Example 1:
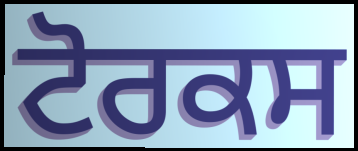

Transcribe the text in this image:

ਟੋਰਕਸ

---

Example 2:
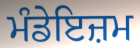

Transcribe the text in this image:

ਮੰਡੇਇਜ਼ਮ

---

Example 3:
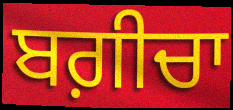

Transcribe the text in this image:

ਬਗ਼ੀਚਾ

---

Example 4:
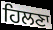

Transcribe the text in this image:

ਹਿਲਣਾ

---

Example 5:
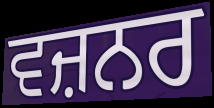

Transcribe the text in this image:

ਵਜ਼ਨਰ